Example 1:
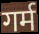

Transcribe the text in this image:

गर्म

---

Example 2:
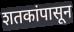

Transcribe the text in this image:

शतकांपासून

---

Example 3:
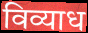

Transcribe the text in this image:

विव्याध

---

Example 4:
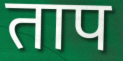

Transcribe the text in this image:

ताप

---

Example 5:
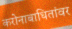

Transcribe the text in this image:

करोनाबाधितांवर